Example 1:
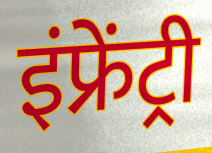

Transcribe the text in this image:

इंफ्रेंट्री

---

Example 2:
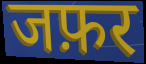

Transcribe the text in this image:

जफ़र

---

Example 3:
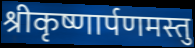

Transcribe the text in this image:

श्रीकृष्णार्पणमस्तु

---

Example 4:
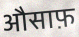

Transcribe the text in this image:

औसाफ़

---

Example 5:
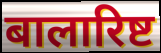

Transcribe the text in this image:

बालारिष्ट